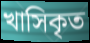
খাসিকৃত